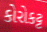
કોરોકટ્ટ